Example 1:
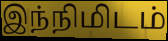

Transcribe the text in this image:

இந்நிமிடம்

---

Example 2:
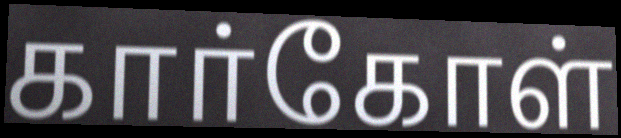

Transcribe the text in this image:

கார்கோள்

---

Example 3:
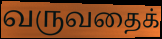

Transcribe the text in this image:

வருவதைக்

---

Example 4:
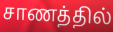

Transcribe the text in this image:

சாணத்தில்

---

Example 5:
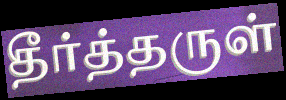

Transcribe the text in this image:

தீர்த்தருள்